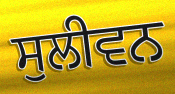
ਸੁਲੀਵਨ